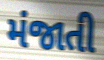
મંજાતી